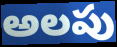
అలపు